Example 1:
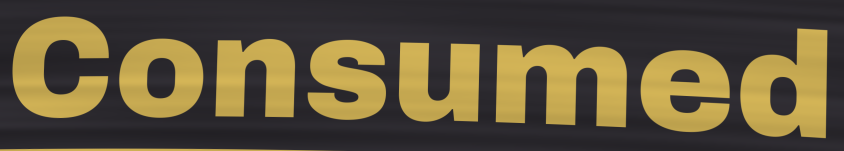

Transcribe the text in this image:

Consumed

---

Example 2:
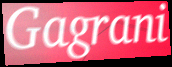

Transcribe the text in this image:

Gagrani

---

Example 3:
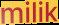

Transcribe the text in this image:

milik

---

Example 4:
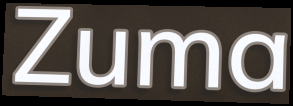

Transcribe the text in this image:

Zuma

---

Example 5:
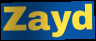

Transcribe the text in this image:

Zayd